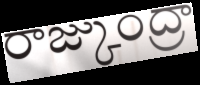
రాజ్కుంద్రా